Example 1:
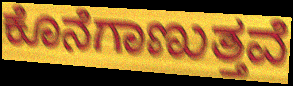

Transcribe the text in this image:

ಕೊನೆಗಾಣುತ್ತವೆ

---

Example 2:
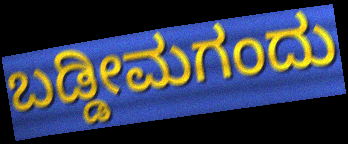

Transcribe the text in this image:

ಬಡ್ಡೀಮಗಂದು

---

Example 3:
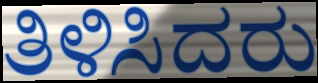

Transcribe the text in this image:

ತಿಳಿಸಿದರು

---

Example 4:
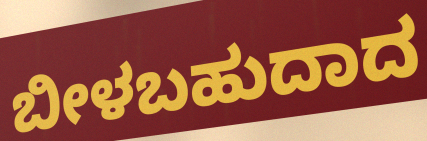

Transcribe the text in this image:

ಬೀಳಬಹುದಾದ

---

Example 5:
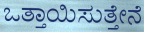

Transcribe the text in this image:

ಒತ್ತಾಯಿಸುತ್ತೇನೆ